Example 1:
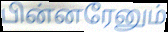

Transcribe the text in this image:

பின்னரேனும்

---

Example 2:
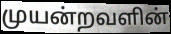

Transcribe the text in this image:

முயன்றவளின்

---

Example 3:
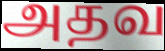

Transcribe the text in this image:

அதவ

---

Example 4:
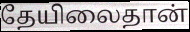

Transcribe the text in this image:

தேயிலைதான்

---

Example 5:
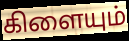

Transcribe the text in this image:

கிளையும்